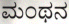
ಮಂಥನ